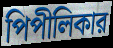
পিপীলিকার